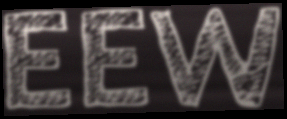
EEW